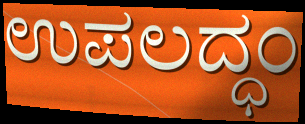
ಉಪಲದ್ಧಂ